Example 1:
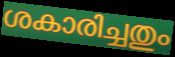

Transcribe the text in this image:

ശകാരിച്ചതും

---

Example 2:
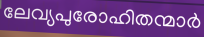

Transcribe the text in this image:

ലേവ്യപുരോഹിതന്മാർ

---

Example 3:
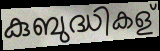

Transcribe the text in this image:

കുബുദ്ധികള്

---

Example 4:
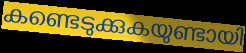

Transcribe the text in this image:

കണ്ടെടുക്കുകയുണ്ടായി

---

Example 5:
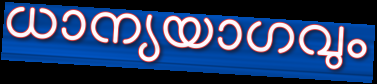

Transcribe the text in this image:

ധാന്യയാഗവും